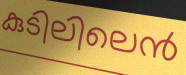
കുടിലിലെൻ